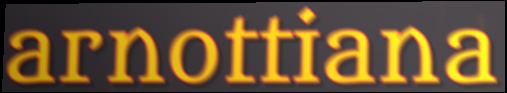
arnottiana